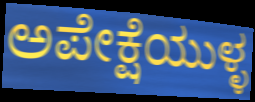
ಅಪೇಕ್ಷೆಯುಳ್ಳ